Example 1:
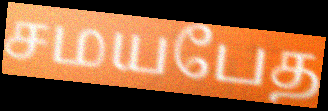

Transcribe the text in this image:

சமயபேத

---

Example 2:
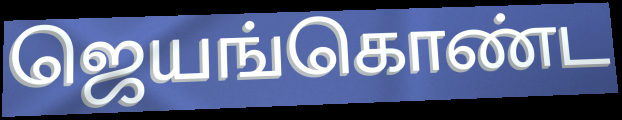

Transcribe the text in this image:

ஜெயங்கொண்ட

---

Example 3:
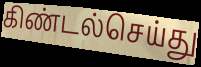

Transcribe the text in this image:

கிண்டல்செய்து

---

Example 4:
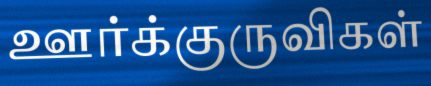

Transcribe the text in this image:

ஊர்க்குருவிகள்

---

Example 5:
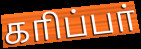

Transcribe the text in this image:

கரிப்பர்